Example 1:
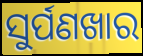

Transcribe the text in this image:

ସୁର୍ପଣଖାର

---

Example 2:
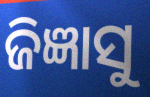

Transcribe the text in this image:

ଜିଜ୍ଞାସୁ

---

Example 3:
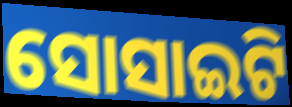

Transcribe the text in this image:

ସୋସାଇଟି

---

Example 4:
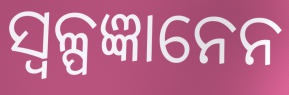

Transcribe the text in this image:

ସ୍ଵଳ୍ପଜ୍ଞାନେନ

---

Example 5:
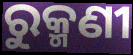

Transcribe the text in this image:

ରୁକ୍ମଣୀ